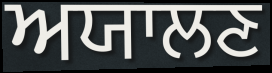
ਅਯਾਲਣ